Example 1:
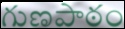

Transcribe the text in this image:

గుణపాఠం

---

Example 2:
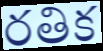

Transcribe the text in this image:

రతిక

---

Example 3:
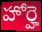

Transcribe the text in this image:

హోర్హె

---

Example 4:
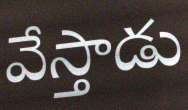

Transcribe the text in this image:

వేస్తాడు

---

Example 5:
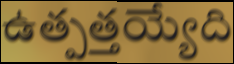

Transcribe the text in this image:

ఉత్పత్తయ్యేది